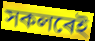
সকলৰেই